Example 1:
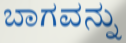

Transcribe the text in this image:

ಬಾಗವನ್ನು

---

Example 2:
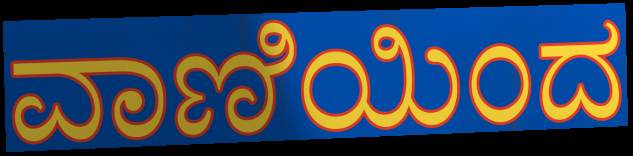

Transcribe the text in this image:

ವಾಣಿಯಿಂದ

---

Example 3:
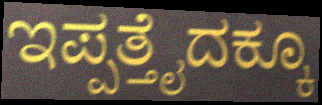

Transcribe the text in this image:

ಇಪ್ಪತ್ತೈದಕ್ಕೂ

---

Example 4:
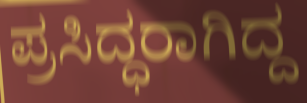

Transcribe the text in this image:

ಪ್ರಸಿದ್ಧರಾಗಿದ್ದ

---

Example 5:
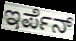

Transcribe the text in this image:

ಇರ್ಪೆನ್